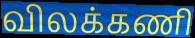
விலக்கணி